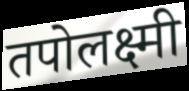
तपोलक्ष्मी